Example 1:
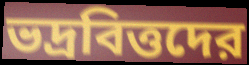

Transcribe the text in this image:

ভদ্রবিত্তদের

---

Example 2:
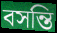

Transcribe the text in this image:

বসন্তি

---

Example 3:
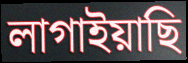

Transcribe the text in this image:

লাগাইয়াছি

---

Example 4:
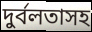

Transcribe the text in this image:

দুর্বলতাসহ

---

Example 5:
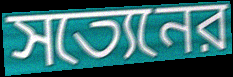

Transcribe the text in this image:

সত্যেনের